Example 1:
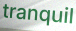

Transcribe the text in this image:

tranquil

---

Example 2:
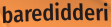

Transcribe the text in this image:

baredidderi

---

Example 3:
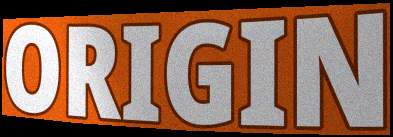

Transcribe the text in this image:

ORIGIN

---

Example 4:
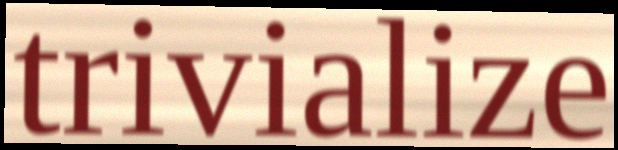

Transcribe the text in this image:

trivialize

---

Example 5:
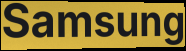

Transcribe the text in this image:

Samsung